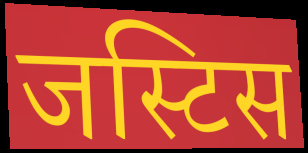
जस्टिस